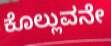
ಕೊಲ್ಲುವನೇ